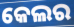
କେଲର